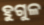
ହୁଗୁଳ